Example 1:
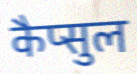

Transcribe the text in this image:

कैप्सुल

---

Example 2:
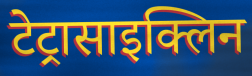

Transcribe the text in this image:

टेट्रासाइक्लिन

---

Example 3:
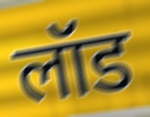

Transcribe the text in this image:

लॉड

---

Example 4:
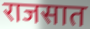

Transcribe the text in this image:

राजसात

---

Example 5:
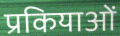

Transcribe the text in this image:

प्रकियाओं